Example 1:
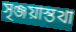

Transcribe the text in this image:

সৃঞ্জয়াস্তথা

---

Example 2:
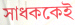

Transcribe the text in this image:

সাধককেই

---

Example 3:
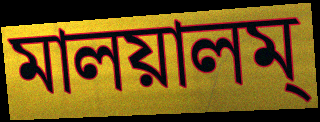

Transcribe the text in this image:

মালয়ালম্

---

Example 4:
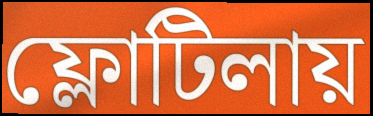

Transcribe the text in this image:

ফ্লোটিলায়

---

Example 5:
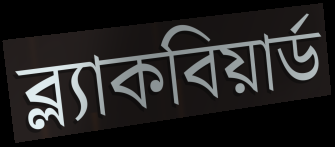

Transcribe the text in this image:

ব্ল্যাকবিয়ার্ড